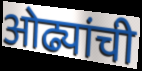
ओढ्यांची